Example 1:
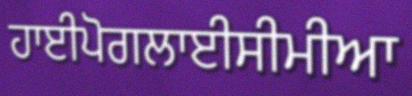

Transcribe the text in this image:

ਹਾਈਪੋਗਲਾਈਸੀਮੀਆ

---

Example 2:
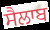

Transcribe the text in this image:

ਸੈਲਾਬ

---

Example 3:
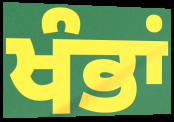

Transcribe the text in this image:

ਖੰਭਾਂ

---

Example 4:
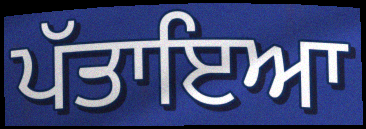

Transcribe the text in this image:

ਪੱਤਾਇਆ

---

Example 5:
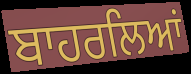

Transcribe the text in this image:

ਬਾਹਰਲਿਆਂ